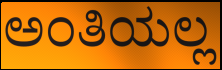
ಅಂತಿಯಲ್ಲ